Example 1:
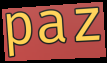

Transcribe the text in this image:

paz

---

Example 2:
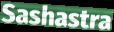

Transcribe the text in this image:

Sashastra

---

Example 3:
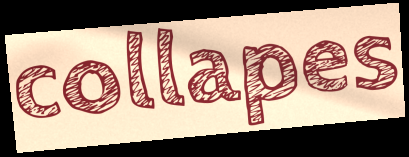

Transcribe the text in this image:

collapes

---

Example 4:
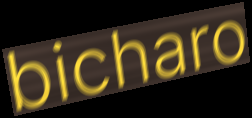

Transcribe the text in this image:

bicharo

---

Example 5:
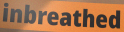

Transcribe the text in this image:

inbreathed